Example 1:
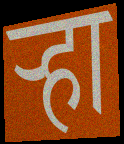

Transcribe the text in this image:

ऱ्हा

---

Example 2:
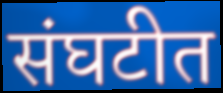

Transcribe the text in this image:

संघटीत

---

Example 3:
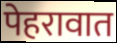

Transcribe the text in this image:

पेहरावात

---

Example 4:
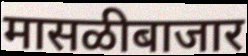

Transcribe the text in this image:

मासळीबाजार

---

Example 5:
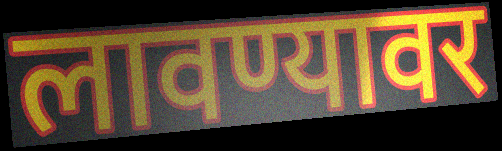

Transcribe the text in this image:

लावण्यावर